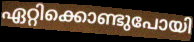
ഏറ്റിക്കൊണ്ടുപോയി